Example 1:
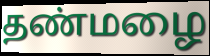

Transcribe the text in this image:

தண்மழை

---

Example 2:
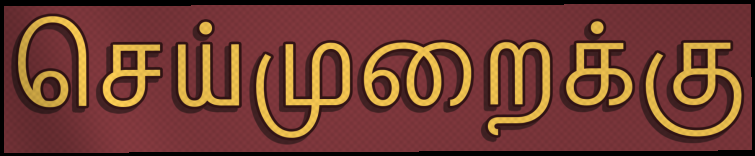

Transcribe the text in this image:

செய்முறைக்கு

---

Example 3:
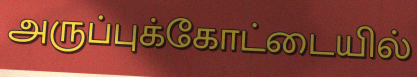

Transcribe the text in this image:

அருப்புக்கோட்டையில்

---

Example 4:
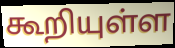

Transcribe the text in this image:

கூறியுள்ள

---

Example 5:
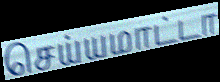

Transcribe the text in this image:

செய்யமாட்டா